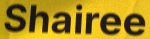
Shairee